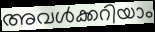
അവൾക്കറിയാം